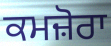
ਕਮਜ਼ੋਰਾ